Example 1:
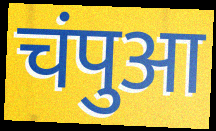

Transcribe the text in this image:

चंपुआ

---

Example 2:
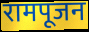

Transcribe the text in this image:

रामपूजन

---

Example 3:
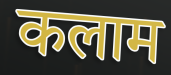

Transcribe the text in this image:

कलाम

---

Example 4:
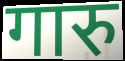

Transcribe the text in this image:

गारु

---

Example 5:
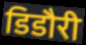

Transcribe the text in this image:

डिडौरी